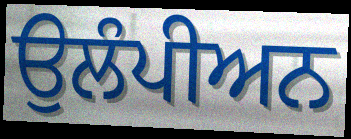
ਉੁਲੰਪੀਅਨ